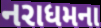
નરાધમના